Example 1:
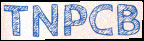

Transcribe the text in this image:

TNPCB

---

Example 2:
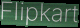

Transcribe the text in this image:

Flipkart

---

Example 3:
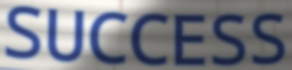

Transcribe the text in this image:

SUCCESS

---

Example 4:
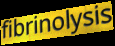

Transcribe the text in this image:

fibrinolysis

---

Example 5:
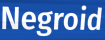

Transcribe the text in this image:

Negroid